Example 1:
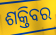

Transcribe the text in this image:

ଶକ୍ତିବର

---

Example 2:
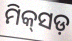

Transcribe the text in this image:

ମିକ୍‌ସଡ଼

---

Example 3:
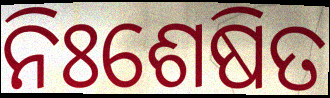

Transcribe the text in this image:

ନିଃଶେଷିତ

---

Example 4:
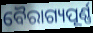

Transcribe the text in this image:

ବୈରାଗ୍ୟପୂର୍ଣ୍ଣ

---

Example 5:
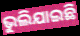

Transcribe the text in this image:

ଭୁଲିଯାଇଛି